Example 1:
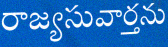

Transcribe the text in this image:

రాజ్యసువార్తను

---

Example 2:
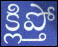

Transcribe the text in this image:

క్లిప్తో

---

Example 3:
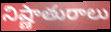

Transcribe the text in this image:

నిష్ణాతురాలు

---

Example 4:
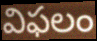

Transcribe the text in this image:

విఫలం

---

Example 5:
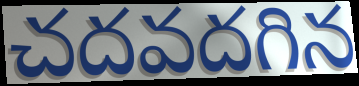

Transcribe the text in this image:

చదవదగిన